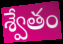
శ్వేతం